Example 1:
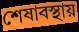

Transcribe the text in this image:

শেষাবস্থায়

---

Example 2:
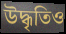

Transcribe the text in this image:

উদ্ধৃতিও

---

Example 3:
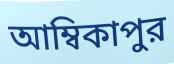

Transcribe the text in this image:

আম্বিকাপুর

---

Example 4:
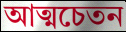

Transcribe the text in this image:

আত্মচেতন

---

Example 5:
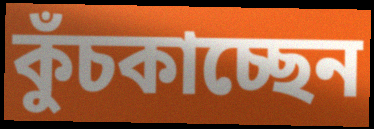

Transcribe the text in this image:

কুঁচকাচ্ছেন